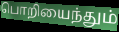
பொறியைந்தும்